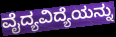
ವೈದ್ಯವಿದ್ಯೆಯನ್ನು